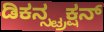
ಡಿಕನ್ಸ್ಟ್ರಕ್ಷನ್